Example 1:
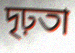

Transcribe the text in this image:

দৃঢ়তা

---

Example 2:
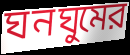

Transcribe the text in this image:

ঘনঘুমের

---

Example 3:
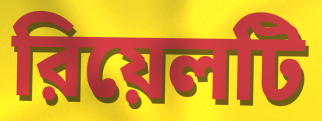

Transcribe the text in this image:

রিয়েলটি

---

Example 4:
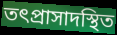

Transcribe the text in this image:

তৎপ্রাসাদস্থিত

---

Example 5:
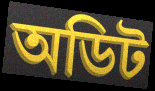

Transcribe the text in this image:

অডিট